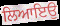
ਲਿਆਇਉ